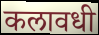
कलावधी